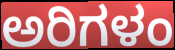
ಅರಿಗಳಂ